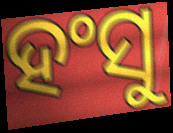
ହଂସୁ